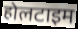
होलटाइम